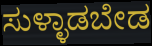
ಸುಳ್ಳಾಡಬೇಡ